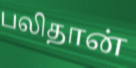
பலிதான்